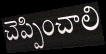
చెప్పించాలి